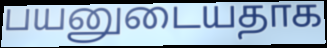
பயனுடையதாக